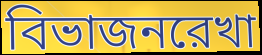
বিভাজনরেখা